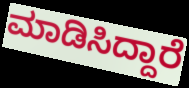
ಮಾಡಿಸಿದ್ದಾರೆ